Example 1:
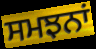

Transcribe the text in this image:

ਸਮਝਨਾਂ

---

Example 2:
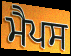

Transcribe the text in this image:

ਮੈਪਸ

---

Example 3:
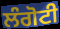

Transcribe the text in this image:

ਲੰਗੋਟੀ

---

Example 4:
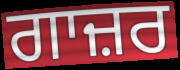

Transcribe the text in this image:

ਗਾਜ਼ਰ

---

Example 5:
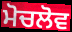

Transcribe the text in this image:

ਮੋਚਲੋਵ